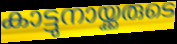
കാട്ടുനായ്ക്കരുടെ